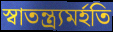
স্বাতন্ত্র্যমর্হতি